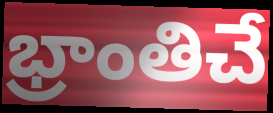
భ్రాంతిచే